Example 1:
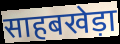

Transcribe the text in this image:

साहबखेड़ा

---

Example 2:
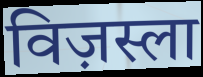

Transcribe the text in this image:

विज़स्ला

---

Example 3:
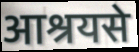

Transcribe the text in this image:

आश्रयसे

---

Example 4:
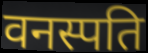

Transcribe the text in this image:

वनस्पति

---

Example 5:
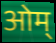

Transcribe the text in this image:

ओम्